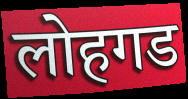
लोहगड